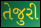
તેજુરી